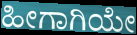
ಹೀಗಾಗಿಯೇ